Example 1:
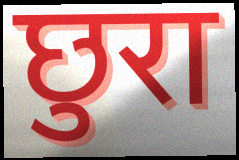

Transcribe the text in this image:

छुरा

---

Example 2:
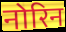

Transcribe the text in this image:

नोरिन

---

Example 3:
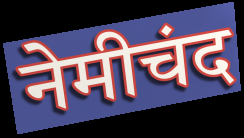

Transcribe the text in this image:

नेमीचंद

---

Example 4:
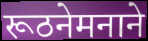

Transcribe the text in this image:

रूठनेमनाने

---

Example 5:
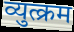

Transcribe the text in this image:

व्युत्क्रम